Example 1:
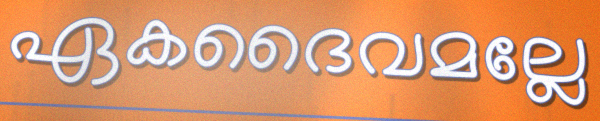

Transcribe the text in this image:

ഏകദൈവമല്ലേ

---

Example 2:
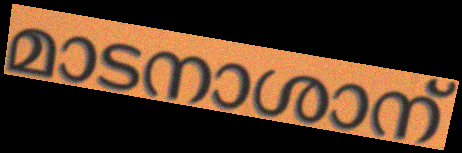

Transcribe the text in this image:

മാടനാശാന്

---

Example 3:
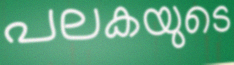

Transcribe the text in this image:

പലകയുടെ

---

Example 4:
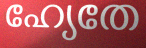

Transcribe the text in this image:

ഹ്യേതേ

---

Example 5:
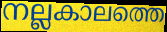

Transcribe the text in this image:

നല്ലകാലത്തെ